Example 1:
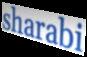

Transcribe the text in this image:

sharabi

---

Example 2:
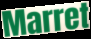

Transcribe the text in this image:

Marret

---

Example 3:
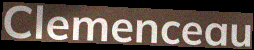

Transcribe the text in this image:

Clemenceau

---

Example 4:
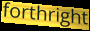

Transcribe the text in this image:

forthright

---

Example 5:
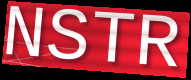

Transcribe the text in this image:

NSTR